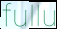
fullu